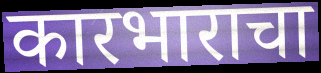
कारभाराचा